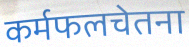
कर्मफलचेतना